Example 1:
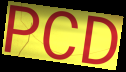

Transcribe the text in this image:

PCD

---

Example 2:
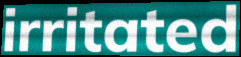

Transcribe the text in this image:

irritated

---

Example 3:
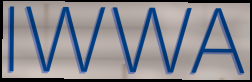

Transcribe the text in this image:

IWWA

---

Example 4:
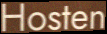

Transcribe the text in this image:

Hosten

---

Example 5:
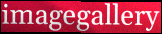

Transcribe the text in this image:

imagegallery